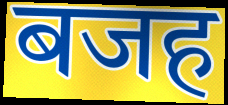
बजह